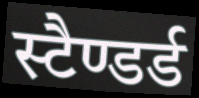
स्‍टैण्‍डर्ड